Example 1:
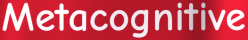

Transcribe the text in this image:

Metacognitive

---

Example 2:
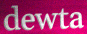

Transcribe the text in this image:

dewta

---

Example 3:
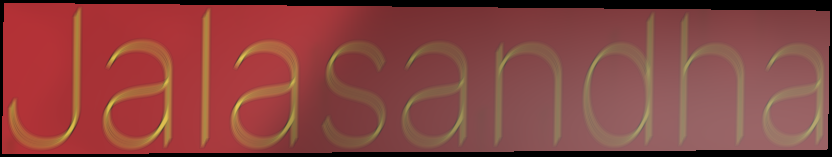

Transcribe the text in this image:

Jalasandha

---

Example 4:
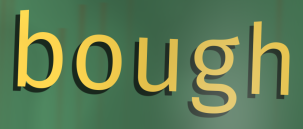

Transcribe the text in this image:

bough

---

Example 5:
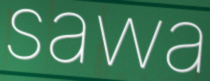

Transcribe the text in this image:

sawa